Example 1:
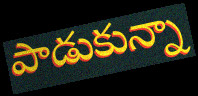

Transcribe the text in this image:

పాడుకున్నా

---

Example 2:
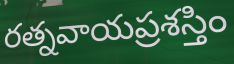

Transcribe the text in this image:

రత్నవాయప్రశస్తిం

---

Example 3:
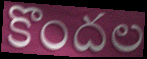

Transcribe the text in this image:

కొందల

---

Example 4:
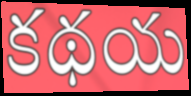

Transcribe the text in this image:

కథయ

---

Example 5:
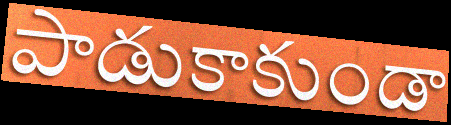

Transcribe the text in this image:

పాడుకాకుండా